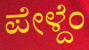
ಪೇಳ್ದೆಂ